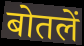
बोतलें